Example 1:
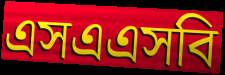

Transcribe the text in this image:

এসএএসবি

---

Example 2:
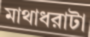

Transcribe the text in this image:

মাথাধরাটা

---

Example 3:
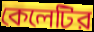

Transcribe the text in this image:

কেলেটির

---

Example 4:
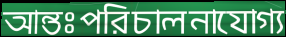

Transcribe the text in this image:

আন্তঃপরিচালনাযোগ্য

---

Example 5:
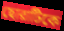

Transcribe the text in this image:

ছোরাটিকে